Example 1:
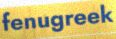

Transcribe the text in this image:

fenugreek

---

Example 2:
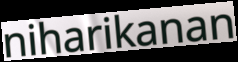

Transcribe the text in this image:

niharikanan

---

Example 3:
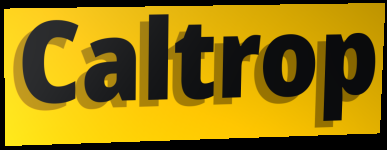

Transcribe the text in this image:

Caltrop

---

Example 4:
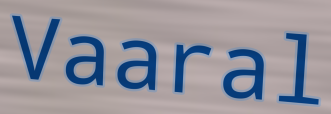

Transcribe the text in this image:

Vaaral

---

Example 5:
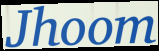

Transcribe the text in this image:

Jhoom